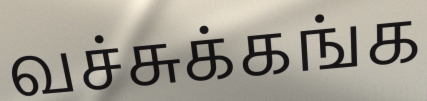
வச்சுக்கங்க